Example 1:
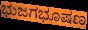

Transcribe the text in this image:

ಭುಜಗಭೂಷಣ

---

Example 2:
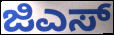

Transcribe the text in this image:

ಜಿಎಸ್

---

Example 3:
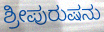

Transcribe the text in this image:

ಶ್ರೀಪುರುಷನು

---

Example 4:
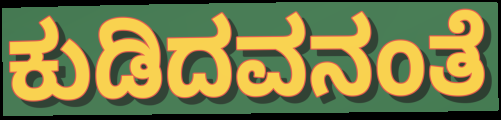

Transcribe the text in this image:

ಕುಡಿದವನಂತೆ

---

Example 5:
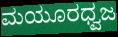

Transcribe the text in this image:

ಮಯೂರಧ್ವಜ